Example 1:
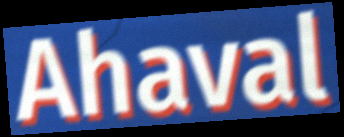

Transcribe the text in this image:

Ahaval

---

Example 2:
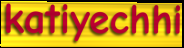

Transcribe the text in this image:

katiyechhi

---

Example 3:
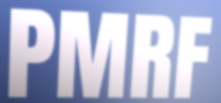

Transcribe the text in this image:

PMRF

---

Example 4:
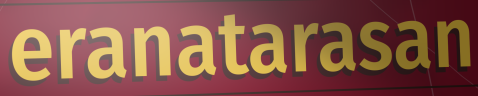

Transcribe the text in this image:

eranatarasan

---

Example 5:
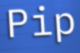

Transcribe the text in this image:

Pip